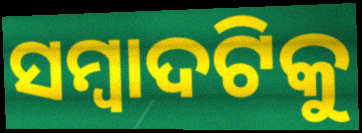
ସମ୍ୱାଦଟିକୁ